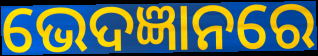
ଭେଦଜ୍ଞାନରେ